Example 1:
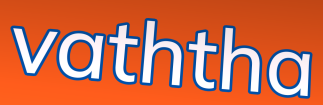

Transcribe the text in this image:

vaththa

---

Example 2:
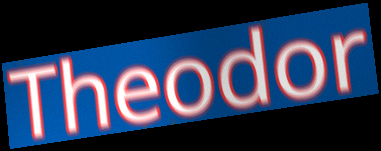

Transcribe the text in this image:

Theodor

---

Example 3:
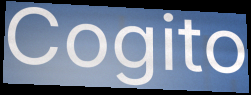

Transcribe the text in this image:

Cogito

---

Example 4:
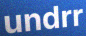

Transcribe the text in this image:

undrr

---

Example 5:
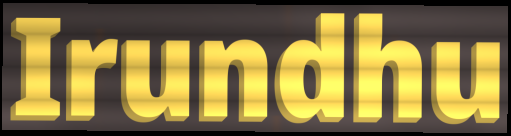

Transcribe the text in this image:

Irundhu